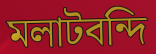
মলাটবন্দি